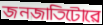
জনজাতিটোৱে